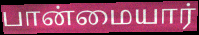
பான்மையார்